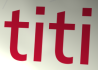
titi